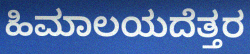
ಹಿಮಾಲಯದೆತ್ತರ